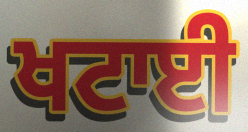
ਖਟਾਈ